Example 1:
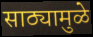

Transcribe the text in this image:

साठ्यामुळे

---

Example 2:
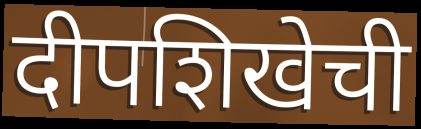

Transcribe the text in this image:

दीपशिखेची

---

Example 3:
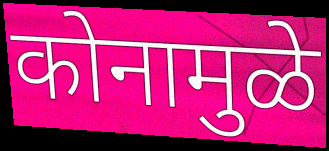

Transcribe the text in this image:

कोनामुळे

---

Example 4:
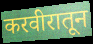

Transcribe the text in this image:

करवीरातून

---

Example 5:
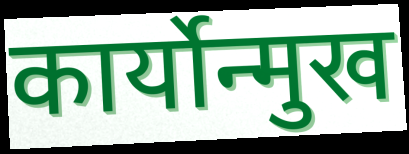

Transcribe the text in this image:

कार्योन्मुख